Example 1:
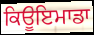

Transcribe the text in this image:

ਕਿਊਇਮਾਡਾ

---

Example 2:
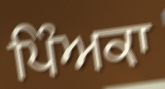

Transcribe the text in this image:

ਪਿੰਅਕਾ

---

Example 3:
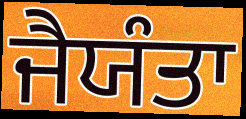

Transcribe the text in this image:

ਜੈਯੰਤਾ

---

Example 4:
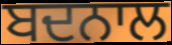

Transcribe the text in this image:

ਬਦਨਾਲ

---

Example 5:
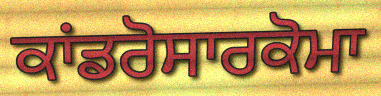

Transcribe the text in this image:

ਕਾਂਡਰੋਸਾਰਕੋਮਾ